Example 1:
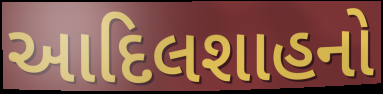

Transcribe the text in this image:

આદિલશાહનો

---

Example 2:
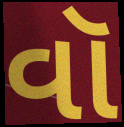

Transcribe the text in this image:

વૉ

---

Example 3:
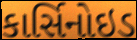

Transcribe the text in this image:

કાર્સિનોઇડ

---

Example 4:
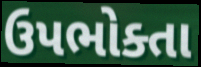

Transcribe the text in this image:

ઉપભોક્તા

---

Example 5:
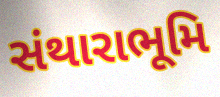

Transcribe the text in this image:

સંથારાભૂમિ